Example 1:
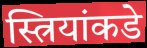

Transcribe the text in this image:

स्त्रियांकडे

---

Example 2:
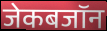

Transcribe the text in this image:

जेकबजॉन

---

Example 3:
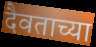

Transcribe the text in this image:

दैवताच्या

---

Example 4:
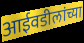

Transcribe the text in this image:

आईवडीलांच्या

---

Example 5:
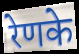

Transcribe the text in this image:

रेणके